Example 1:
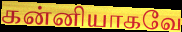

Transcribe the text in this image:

கன்னியாகவே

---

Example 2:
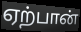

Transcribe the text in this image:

ஏற்பான்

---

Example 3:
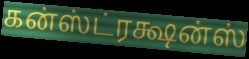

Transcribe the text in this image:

கன்ஸ்ட்ரக்ஷன்ஸ்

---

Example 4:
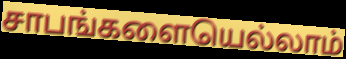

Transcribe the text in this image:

சாபங்களையெல்லாம்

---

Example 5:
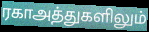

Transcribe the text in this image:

ரகாஅத்துகளிலும்